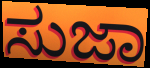
ಸುಜಾ